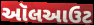
ઑલઆઉટ